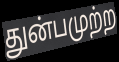
துன்பமுற்ற